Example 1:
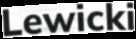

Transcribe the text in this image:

Lewicki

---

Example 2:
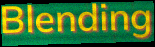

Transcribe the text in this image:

Blending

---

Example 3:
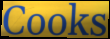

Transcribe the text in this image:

Cooks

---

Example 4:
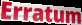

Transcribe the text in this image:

Erratum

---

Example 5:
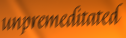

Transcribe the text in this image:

unpremeditated